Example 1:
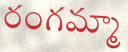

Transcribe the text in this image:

రంగమ్మా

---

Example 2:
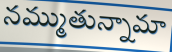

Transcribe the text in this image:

నమ్ముతున్నామా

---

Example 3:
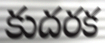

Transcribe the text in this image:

కుదరక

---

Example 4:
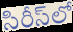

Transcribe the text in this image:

సిరీస్‌లో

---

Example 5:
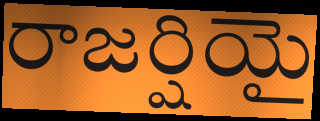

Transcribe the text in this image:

రాజర్షియై